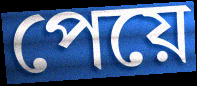
পেয়ে